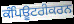
ਕੰਪਿਊਟਰੀਕਰਨ